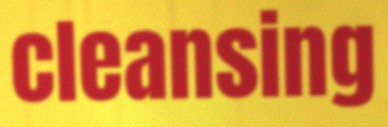
cleansing